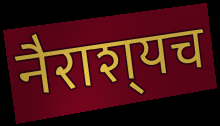
नैराश्यच